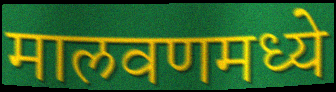
मालवणमध्ये